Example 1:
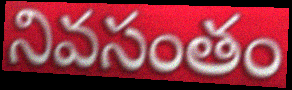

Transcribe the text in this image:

నివసంతం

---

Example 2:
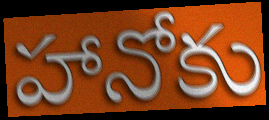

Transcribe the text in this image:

హానోకు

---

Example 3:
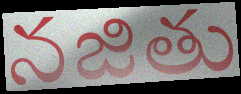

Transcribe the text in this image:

నజితు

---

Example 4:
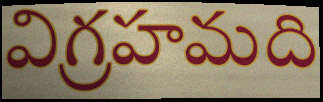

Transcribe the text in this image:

విగ్రహమది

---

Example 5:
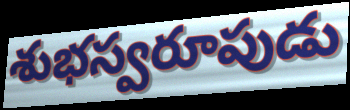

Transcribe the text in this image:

శుభస్వరూపుడు